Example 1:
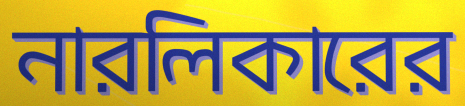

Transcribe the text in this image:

নারলিকারের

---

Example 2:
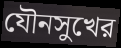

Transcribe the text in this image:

যৌনসুখের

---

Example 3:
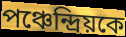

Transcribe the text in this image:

পঞ্চেন্দ্রিয়কে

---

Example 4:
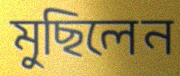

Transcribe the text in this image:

মুছিলেন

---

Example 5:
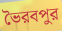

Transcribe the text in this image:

ভৈরবপুর